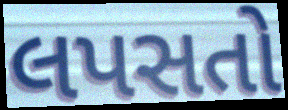
લપસતો